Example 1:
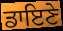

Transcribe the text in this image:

ਡਾਇਣੇ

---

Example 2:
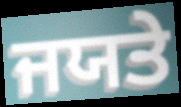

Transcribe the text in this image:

ਜਯਤੇ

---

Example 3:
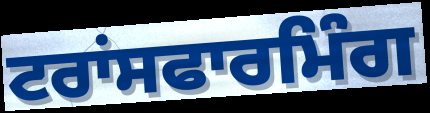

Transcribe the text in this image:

ਟਰਾਂਸਫਾਰਮਿੰਗ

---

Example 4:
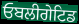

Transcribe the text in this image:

ਓਬਲੀਗੇਟਿਡ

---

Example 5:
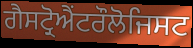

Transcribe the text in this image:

ਗੈਸਟ੍ਰੋਐਂਟਰੌਲੋਜਿਸਟ